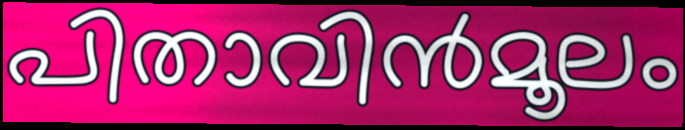
പിതാവിൻമൂലം